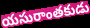
యసురాంతకుడు